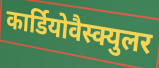
कार्डियोवैस्क्युलर